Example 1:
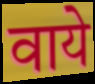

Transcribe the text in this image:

वाये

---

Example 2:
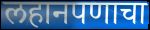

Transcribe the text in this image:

लहानपणाचा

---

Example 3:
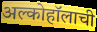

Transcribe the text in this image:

अल्कोहॉलाची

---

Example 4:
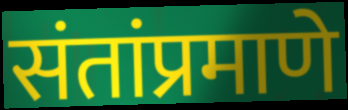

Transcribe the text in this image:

संतांप्रमाणे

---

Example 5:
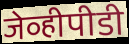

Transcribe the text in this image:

जेव्हीपीडी